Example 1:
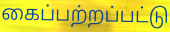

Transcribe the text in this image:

கைப்பற்றப்பட்டு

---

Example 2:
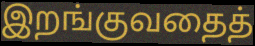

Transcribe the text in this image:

இறங்குவதைத்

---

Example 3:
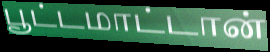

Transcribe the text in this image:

பூட்டமாட்டான்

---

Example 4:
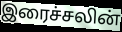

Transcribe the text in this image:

இரைச்சலின்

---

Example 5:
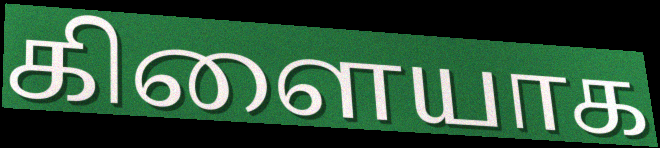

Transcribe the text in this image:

கிளையாக